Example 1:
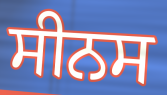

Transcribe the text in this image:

ਸੀਨਸ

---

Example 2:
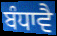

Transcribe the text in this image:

ਬੰਧਾਵੈ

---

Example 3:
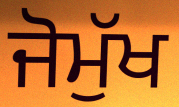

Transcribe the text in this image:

ਜੋਮੁੱਖ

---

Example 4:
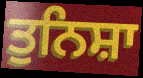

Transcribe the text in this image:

ਤੁਨਿਸ਼ਾ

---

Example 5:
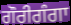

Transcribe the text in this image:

ਗੌਰੀਗੰਗਾ